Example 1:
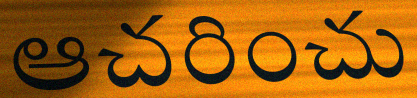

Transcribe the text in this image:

ఆచరించు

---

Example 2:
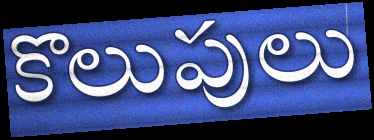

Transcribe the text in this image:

కొలుపులు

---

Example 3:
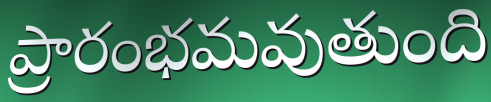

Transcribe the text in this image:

ప్రారంభమవుతుంది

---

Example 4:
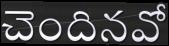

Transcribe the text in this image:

చెందినవో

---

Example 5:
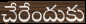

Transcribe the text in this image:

చేరేందుకు